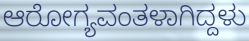
ಆರೋಗ್ಯವಂತಳಾಗಿದ್ದಳು